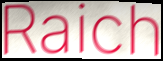
Raich